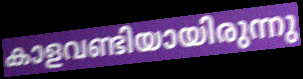
കാളവണ്ടിയായിരുന്നു